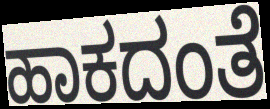
ಹಾಕದಂತೆ